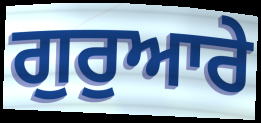
ਗੁਰੁਆਰੇ